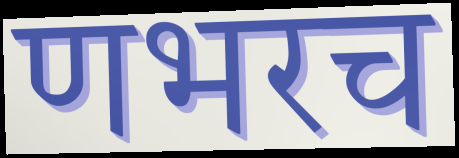
णभरच